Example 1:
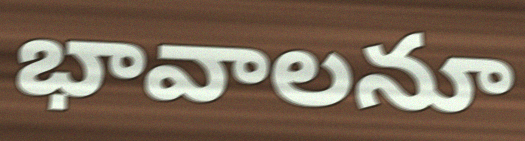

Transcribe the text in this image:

భావాలనూ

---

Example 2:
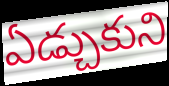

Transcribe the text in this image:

ఏడ్చుకుని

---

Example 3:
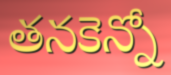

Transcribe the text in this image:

తనకెన్నో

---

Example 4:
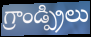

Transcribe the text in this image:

గ్రాండ్ప్రిలు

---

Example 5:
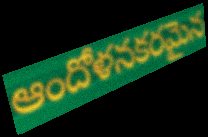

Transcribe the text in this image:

ఆందోళనకరమైన